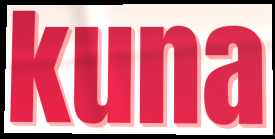
kuna